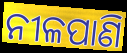
ନୀଳପାଣି